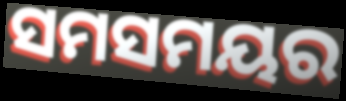
ସମସମୟର